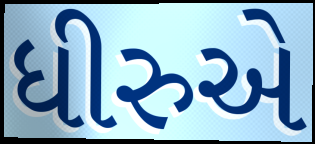
ધીરુએ